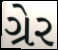
ગ્રેર